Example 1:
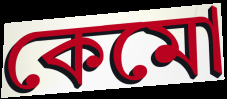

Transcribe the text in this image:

কেমো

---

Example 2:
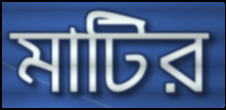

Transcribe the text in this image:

মাটির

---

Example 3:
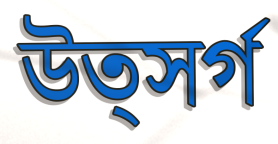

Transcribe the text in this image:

উত্সর্গ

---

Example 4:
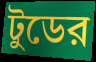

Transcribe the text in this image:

টুডের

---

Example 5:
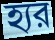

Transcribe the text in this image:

হ্যর